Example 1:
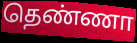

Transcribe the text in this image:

தெண்ணா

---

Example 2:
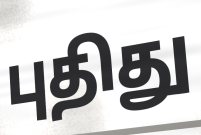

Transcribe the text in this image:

புதிது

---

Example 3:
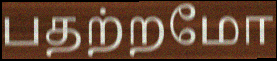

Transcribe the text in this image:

பதற்றமோ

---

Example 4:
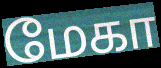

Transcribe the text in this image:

மேகா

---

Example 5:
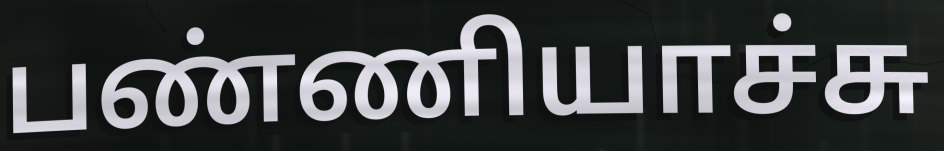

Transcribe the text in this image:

பண்ணியாச்சு